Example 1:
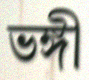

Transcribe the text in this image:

ভঙ্গী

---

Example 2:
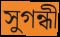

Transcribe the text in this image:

সুগন্ধী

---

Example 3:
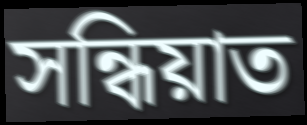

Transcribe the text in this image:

সন্ধিয়াত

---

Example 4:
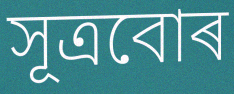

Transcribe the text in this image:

সূত্ৰবোৰ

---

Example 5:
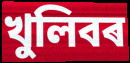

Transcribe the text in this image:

খুলিবৰ